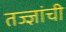
तज्ज्ञांची